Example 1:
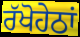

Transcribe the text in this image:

ਰੱਖੋਹੇਠਾਂ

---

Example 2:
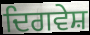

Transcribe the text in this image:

ਦਿਗਵੇਸ਼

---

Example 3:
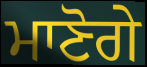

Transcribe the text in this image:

ਮਾਣੋਗੇ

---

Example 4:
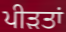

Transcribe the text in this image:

ਪੀਡ਼ਤਾਂ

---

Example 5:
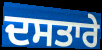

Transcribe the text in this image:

ਦਸਤਾਰੇ